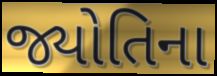
જ્યોતિના